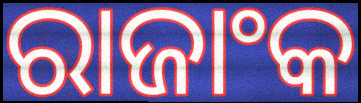
ରାଜାଂକ